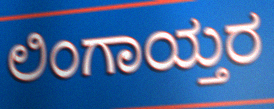
ಲಿಂಗಾಯ್ತರ